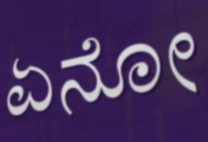
ಏನೋ